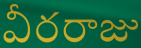
వీరరాజు